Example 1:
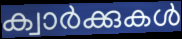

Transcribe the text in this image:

ക്വാർക്കുകൾ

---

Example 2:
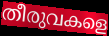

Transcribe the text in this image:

തീരുവകളെ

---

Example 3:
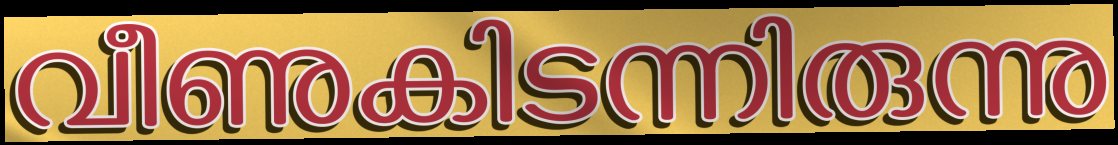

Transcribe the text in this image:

വീണുകിടന്നിരുന്നു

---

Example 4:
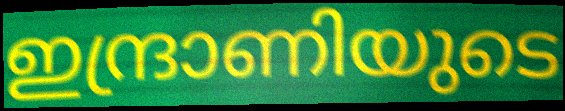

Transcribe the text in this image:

ഇന്ദ്രാണിയുടെ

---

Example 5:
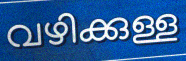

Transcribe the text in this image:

വഴിക്കുള്ള